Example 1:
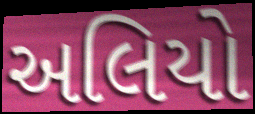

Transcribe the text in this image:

અલિયો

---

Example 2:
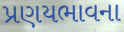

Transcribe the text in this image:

પ્રણયભાવના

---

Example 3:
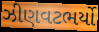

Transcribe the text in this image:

ઝીણવટભર્યો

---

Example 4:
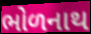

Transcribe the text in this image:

ભોળનાથ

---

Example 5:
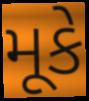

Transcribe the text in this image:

મૂકે